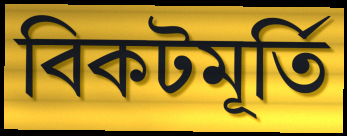
বিকটমূর্তি